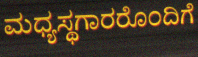
ಮಧ್ಯಸ್ಥಗಾರರೊಂದಿಗೆ